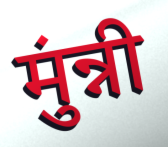
मुंन्नी